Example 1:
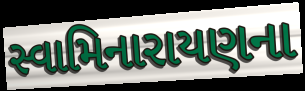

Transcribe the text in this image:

સ્વામિનારાયણના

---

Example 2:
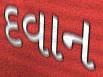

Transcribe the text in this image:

દવાન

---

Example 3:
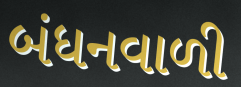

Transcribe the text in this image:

બંધનવાળી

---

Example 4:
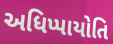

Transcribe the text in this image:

અધિપ્પાયોતિ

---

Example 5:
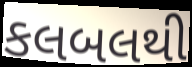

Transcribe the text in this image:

કલબલથી